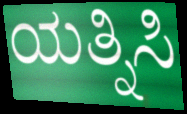
ಯತ್ನಿಸಿ